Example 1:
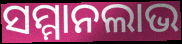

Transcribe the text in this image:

ସମ୍ମାନଲାଭ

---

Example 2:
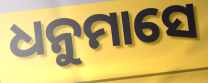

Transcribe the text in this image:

ଧନୁମାସେ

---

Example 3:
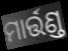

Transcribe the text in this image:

ମାର୍ତ୍ତଣ୍ଡ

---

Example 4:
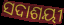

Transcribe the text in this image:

ସଦାଶୟୀ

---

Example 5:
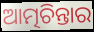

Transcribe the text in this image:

ଆତ୍ମଚିନ୍ତାର